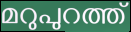
മറുപുറത്ത്